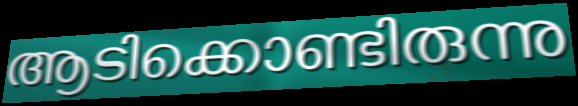
ആടിക്കൊണ്ടിരുന്നു